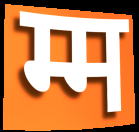
म्म